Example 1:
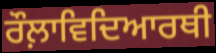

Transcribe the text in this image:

ਰੌਲ਼ਾਵਿਦਿਆਰਥੀ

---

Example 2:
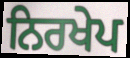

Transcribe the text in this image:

ਨਿਰਖੇਪ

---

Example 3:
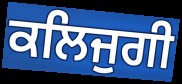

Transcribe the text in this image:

ਕਲਿਜੁਗੀ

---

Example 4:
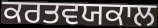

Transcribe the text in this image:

ਕਰਤਵਯਕਾਲ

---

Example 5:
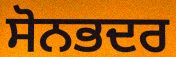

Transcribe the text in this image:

ਸੋਨਭਦਰ